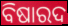
ବିଷାରଦ